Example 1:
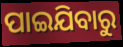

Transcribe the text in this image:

ପାଇଯିବାରୁ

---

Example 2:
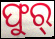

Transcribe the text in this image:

ଫୁର୍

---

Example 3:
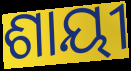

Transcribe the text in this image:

ଶାୟୀ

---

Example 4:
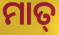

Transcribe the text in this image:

ମାତ୍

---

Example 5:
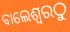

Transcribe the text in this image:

ବାଲେଶ୍ୱରଠୁ